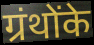
ग्रंथोंके